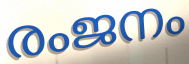
രംജനം